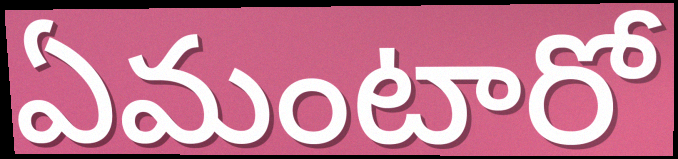
ఏమంటారో